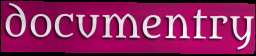
documentry